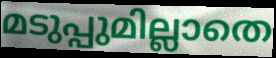
മടുപ്പുമില്ലാതെ